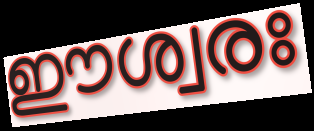
ഈശ്വരഃ